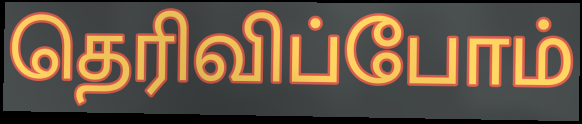
தெரிவிப்போம்